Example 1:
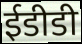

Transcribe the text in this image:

ईडीडी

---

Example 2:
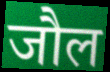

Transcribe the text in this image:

जौल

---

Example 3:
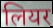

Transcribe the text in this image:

लियर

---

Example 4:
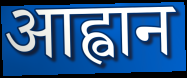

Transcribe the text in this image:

आह्वान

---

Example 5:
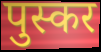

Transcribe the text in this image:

पुस्कर